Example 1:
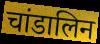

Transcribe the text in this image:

चांडालिन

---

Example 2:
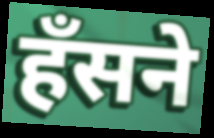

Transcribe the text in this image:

हँसने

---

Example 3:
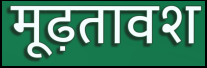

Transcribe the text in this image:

मूढ़तावश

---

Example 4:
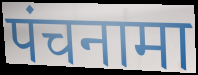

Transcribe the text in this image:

पंचनामा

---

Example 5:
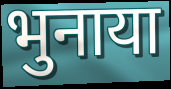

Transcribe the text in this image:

भुनाया